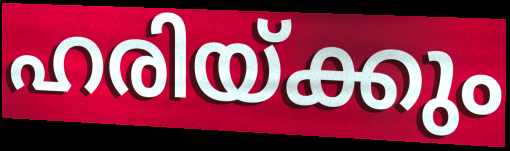
ഹരിയ്ക്കും